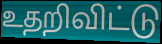
உதறிவிட்டு